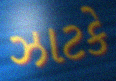
ઝાટકે